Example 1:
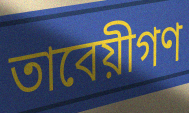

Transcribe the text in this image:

তাবেয়ীগণ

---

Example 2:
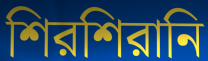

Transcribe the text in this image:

শিরশিরানি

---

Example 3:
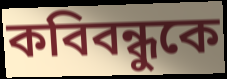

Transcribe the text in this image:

কবিবন্ধুকে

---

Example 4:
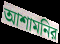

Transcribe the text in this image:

আশামনির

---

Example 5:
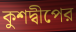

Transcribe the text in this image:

কুশদ্বীপের